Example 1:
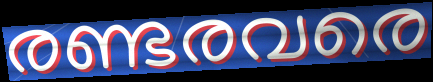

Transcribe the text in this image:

രണ്ടരവരെ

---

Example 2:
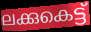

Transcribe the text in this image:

ലക്കുകെട്ട്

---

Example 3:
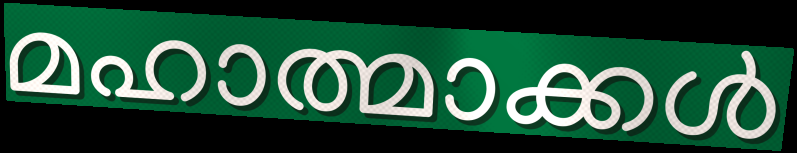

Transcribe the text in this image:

മഹാത്മാക്കൾ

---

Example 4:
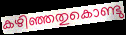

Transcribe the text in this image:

കഴിഞ്ഞതുകൊണ്ടു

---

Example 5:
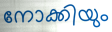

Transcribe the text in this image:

നോക്കിയും